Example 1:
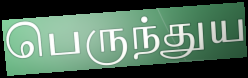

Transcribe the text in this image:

பெருந்துய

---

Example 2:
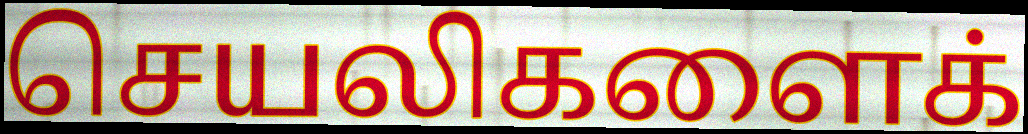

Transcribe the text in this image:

செயலிகளைக்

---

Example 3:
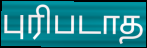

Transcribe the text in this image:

புரிபடாத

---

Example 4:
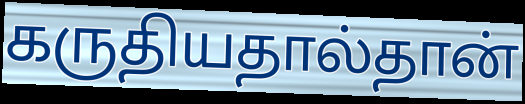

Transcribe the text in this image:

கருதியதால்தான்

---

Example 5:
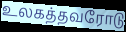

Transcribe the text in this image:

உலகத்தவரோடு